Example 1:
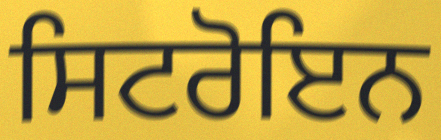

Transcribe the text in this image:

ਸਿਟਰੋਇਨ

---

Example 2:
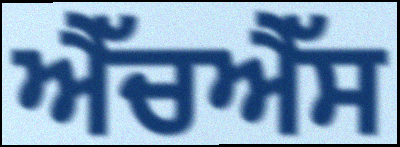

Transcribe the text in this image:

ਐੱਚਐੱਸ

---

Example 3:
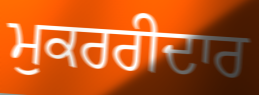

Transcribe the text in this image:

ਮੁਕਰਰੀਦਾਰ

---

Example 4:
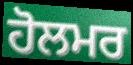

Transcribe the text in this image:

ਹੋਲਮਰ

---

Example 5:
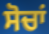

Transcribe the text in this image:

ਸੋਚਾਂ